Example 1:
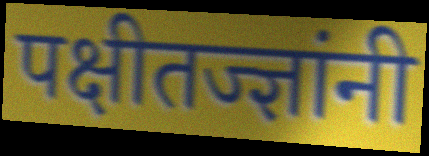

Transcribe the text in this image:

पक्षीतज्ज्ञांनी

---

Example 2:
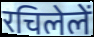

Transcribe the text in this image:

रचिलेलें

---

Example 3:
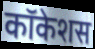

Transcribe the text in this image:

कॉकेशस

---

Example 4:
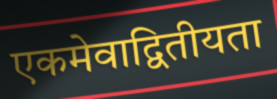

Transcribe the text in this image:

एकमेवाद्वितीयता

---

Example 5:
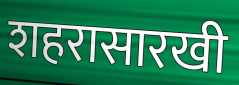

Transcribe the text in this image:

शहरासारखी